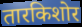
तारकिशोर